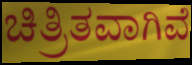
ಚಿತ್ರಿತವಾಗಿವೆ